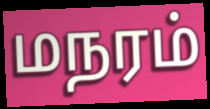
மநரம்